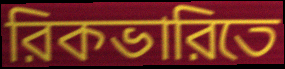
রিকভারিতে